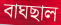
বাঘছাল